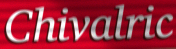
Chivalric